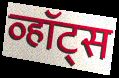
व्हॉट्स